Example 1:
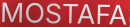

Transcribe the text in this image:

MOSTAFA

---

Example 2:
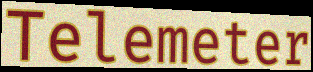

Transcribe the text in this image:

Telemeter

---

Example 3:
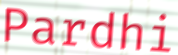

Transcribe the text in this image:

Pardhi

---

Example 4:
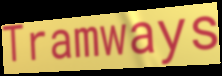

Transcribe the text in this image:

Tramways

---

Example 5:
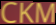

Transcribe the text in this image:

CKM